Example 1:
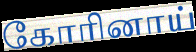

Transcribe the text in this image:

கோரினாய்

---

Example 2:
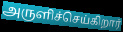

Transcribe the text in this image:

அருளிச்செய்கிறார்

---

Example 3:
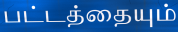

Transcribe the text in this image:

பட்டத்தையும்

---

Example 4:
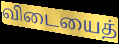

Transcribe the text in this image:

விடையைத்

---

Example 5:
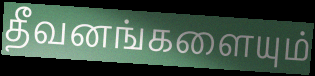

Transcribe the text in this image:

தீவனங்களையும்